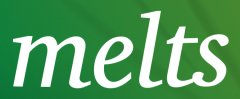
melts